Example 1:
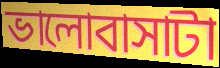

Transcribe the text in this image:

ভালোবাসাটা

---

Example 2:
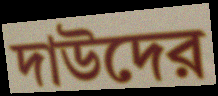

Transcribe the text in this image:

দাউদের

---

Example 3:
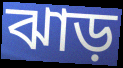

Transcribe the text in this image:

ঝাড়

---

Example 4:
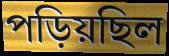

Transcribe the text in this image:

পড়িয়ছিল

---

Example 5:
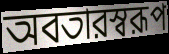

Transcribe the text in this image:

অবতারস্বরূপ